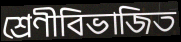
শ্রেণীবিভাজিত